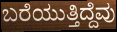
ಬರೆಯುತ್ತಿದ್ದೆವು